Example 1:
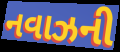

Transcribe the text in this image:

નવાઝની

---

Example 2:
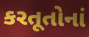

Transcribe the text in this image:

કરતૂતોનાં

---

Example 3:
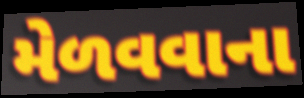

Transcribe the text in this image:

મેળવવાના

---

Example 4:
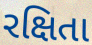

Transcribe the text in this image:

રક્ષિતા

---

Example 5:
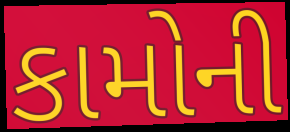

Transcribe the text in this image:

કામોની